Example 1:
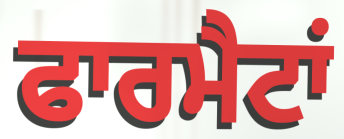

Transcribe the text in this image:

ਫਾਰਮੈਟਾਂ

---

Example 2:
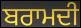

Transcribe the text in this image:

ਬਰਾਮਦੀ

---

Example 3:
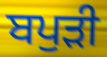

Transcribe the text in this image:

ਬਪੁੜੀ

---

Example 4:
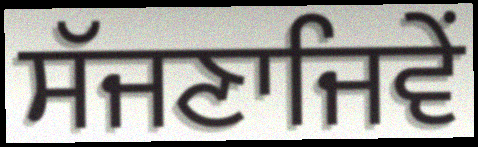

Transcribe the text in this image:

ਸੱਜਣਾਜਿਵੇਂ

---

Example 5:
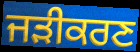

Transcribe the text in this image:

ਜੜੀਕਰਣ